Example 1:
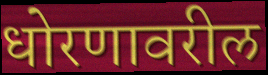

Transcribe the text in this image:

धोरणावरील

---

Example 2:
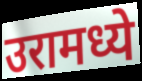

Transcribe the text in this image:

उरामध्ये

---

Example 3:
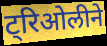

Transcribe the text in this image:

ट्रिओलीने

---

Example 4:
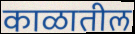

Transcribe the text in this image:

काळातील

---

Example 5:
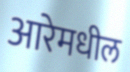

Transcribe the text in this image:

आरेमधील